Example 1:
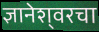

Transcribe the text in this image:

ज्ञानेश्वरचा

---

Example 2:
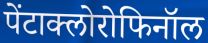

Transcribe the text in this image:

पेंटाक्लोरोफिनॉल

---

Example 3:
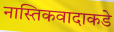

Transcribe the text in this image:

नास्तिकवादाकडे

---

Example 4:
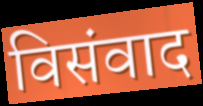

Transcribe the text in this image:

विसंवाद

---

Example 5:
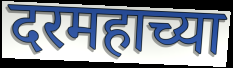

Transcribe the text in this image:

दरमहाच्या